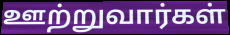
ஊற்றுவார்கள்